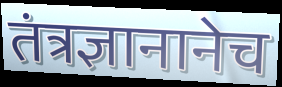
तंत्रज्ञानानेच